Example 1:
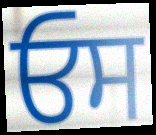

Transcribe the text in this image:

ਓਸ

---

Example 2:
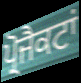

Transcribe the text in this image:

ਪ੍ਰੋਜੈਕਟਾਂ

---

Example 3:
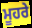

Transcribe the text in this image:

ਮੂਹਰੇ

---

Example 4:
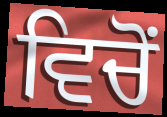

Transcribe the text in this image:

ਵਿਚੋਂ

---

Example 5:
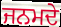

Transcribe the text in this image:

ਜਨਮਦੇ